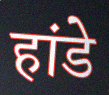
हांडे